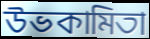
উভকামিতা